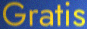
Gratis